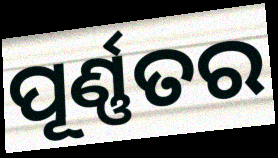
ପୂର୍ଣ୍ଣତର